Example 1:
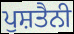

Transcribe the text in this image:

ਪੁਸ਼ਤੈਨੀ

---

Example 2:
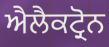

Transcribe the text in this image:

ਐਲੈਕਟ੍ਰੋਨ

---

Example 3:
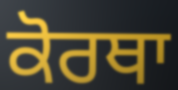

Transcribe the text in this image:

ਕੋਰਥਾ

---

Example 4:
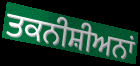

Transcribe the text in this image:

ਤਕਨੀਸ਼ੀਅਨਾਂ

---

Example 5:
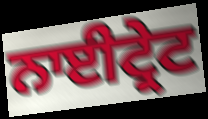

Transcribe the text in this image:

ਨਾਈਟ੍ਰੇਟ